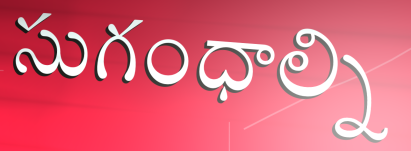
సుగంధాల్ని